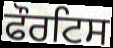
ਫੌਰਟਿਸ